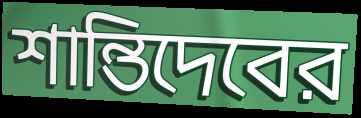
শান্তিদেবের